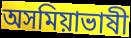
অসমিয়াভাষী